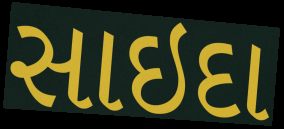
સાઇદા